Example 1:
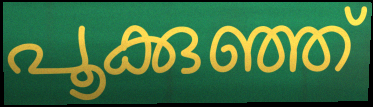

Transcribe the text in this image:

പൂക്കുഞ്ഞ്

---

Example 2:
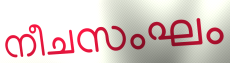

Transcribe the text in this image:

നീചസംഘം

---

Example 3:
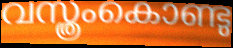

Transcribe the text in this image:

വസ്ത്രംകൊണ്ടു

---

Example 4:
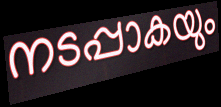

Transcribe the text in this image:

നടപ്പാകയും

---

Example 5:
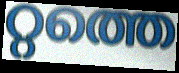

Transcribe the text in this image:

റ്റത്തെ